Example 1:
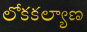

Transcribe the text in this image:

లోకకల్యాణ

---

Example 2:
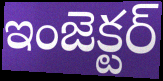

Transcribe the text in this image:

ఇంజెక్టర్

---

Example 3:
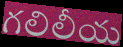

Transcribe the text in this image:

గలిలీయ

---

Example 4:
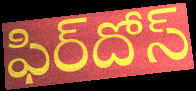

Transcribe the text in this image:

ఫిర్‌దోస్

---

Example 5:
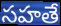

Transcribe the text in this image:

సహతే